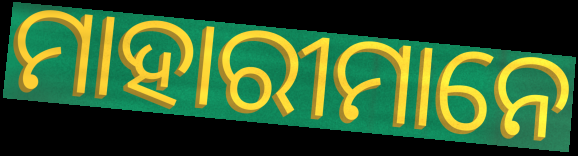
ମାହାରୀମାନେ